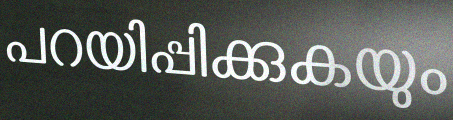
പറയിപ്പിക്കുകയും